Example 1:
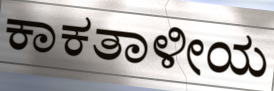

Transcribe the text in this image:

ಕಾಕತಾಳೀಯ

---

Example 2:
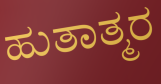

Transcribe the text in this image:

ಹುತಾತ್ಮರ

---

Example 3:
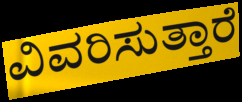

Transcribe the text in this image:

ವಿವರಿಸುತ್ತಾರೆ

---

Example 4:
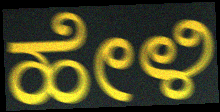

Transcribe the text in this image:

ಹೇಳಿ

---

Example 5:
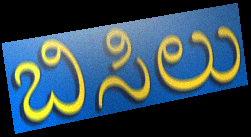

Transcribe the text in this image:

ಬಿಸಿಲು